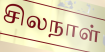
சிலநாள்